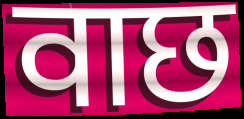
वाछ